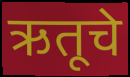
ऋतूचे